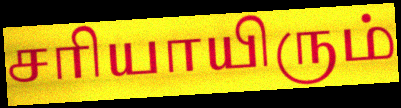
சரியாயிரும்